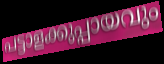
പട്ടാളക്കുപ്പായവും